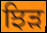
ਝਿੜ